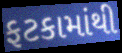
ફટકામાંથી